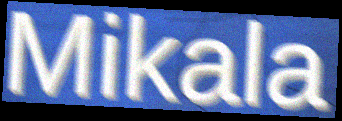
Mikala